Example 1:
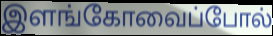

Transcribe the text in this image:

இளங்கோவைப்போல்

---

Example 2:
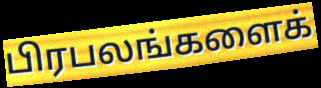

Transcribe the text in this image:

பிரபலங்களைக்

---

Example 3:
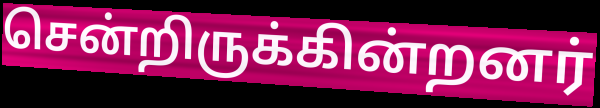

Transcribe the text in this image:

சென்றிருக்கின்றனர்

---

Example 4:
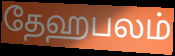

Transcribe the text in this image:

தேஹபலம்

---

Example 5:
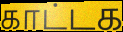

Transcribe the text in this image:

காட்டக